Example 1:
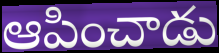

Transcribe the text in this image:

ఆపించాడు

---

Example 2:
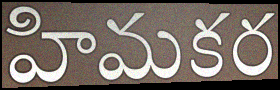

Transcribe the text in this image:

హిమకర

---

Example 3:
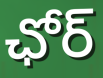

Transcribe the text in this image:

ఛోర్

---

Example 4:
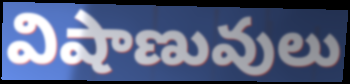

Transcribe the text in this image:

విషాణువులు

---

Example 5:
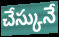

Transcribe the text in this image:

చేస్కునే